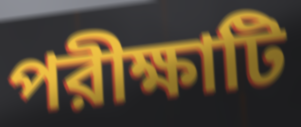
পরীক্ষাটি